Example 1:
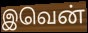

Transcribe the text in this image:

இவென்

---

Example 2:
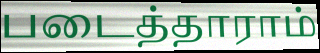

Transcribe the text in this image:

படைத்தாராம்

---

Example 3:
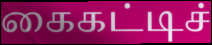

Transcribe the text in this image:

கைகட்டிச்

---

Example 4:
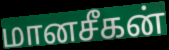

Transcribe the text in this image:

மானசீகன்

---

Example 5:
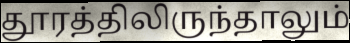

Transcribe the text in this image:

தூரத்திலிருந்தாலும்